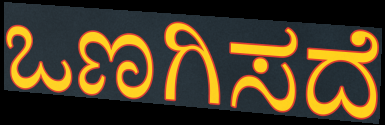
ಒಣಗಿಸದೆ